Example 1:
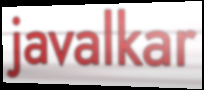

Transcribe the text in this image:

javalkar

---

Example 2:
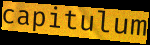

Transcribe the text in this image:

capitulum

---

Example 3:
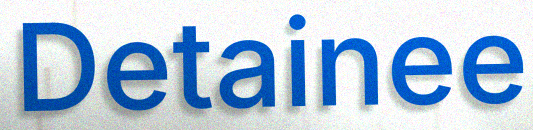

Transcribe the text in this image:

Detainee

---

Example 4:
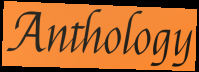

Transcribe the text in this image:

Anthology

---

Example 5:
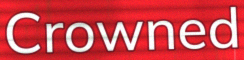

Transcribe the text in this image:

Crowned